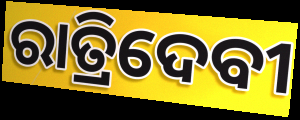
ରାତ୍ରିଦେବୀ